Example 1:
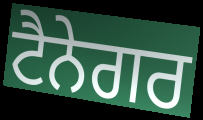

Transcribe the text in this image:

ਟੈਨੇਗਰ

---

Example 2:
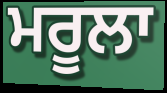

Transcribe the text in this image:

ਮਰੂਲਾ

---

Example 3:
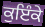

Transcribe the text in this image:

ਕੁਇੰਕੇ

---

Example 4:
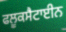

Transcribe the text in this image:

ਫਲੂਕਸੈਟਾਈਨ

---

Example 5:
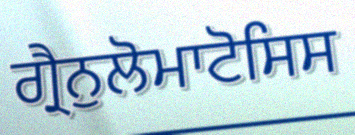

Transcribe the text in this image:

ਗ੍ਰੈਨੁਲੋਮਾਟੋਸਿਸ